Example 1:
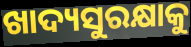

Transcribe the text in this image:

ଖାଦ୍ୟସୁରକ୍ଷାକୁ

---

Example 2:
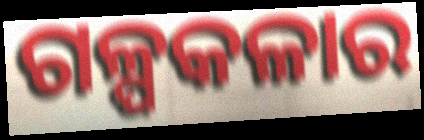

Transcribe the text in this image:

ଗଳ୍ପକଳାର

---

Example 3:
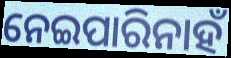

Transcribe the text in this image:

ନେଇପାରିନାହଁ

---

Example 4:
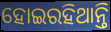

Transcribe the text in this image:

ହୋଇରହିଥାନ୍ତି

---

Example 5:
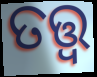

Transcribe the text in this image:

ତତ୍ତ୍ବ